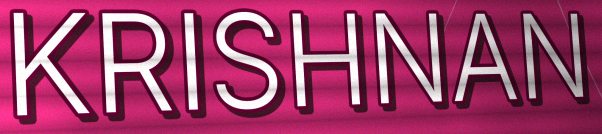
KRISHNAN